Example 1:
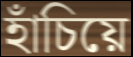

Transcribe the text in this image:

হাঁচিয়ে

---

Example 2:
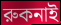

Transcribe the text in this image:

রুকনাই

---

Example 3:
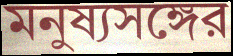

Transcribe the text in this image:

মনুষ্যসঙ্গের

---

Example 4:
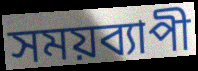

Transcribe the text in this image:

সময়ব্যাপী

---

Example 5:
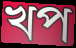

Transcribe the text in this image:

খপ